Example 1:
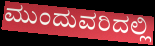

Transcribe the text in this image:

ಮುಂದುವರಿದಲ್ಲಿ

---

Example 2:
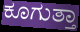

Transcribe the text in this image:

ಕೂಗುತ್ತಾ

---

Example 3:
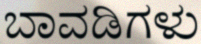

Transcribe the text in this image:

ಬಾವಡಿಗಳು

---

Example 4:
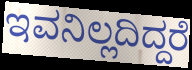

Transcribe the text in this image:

ಇವನಿಲ್ಲದಿದ್ದರೆ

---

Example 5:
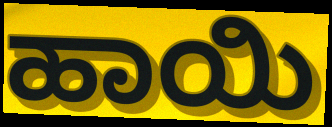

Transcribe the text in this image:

ಹಾಯಿ